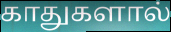
காதுகளால்